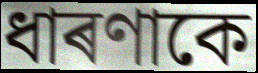
ধাৰণাকে